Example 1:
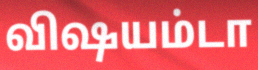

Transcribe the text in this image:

விஷயம்டா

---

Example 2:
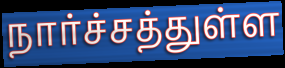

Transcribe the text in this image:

நார்ச்சத்துள்ள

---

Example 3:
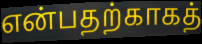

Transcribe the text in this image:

என்பதற்காகத்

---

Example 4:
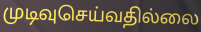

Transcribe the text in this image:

முடிவுசெய்வதில்லை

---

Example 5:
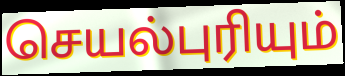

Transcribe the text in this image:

செயல்புரியும்